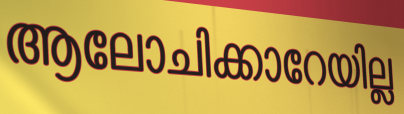
ആലോചിക്കാറേയില്ല